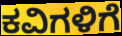
ಕವಿಗಳಿಗೆ